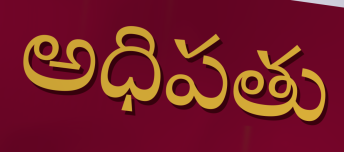
అధిపతు